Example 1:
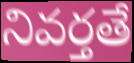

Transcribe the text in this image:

నివర్తతే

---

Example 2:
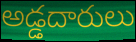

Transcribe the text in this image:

అడ్డదారులు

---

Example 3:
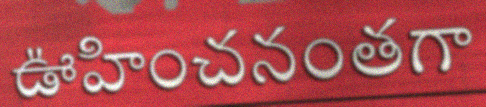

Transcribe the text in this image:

ఊహించనంతగా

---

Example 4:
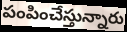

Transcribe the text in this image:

పంపించేస్తున్నారు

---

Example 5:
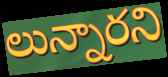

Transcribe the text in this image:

లున్నారని